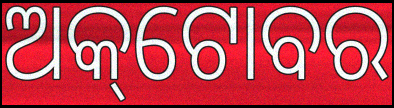
ଅକ୍‌ଟୋବର